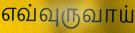
எவ்வுருவாய்